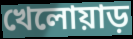
খেলোয়াড়